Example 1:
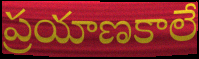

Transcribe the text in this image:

ప్రయాణకాలే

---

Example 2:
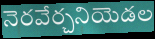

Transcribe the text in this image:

నెరవేర్చనియెడల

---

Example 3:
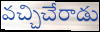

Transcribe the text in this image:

వచ్చిచేరాడు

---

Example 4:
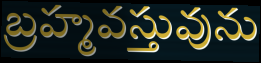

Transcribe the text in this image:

బ్రహ్మవస్తువును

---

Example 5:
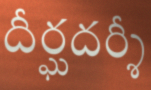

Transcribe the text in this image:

దీర్ఘదర్శీ